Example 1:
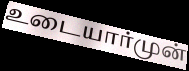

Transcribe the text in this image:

உடையார்முன்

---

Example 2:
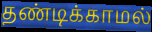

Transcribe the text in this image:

தண்டிக்காமல்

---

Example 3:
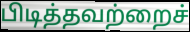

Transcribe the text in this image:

பிடித்தவற்றைச்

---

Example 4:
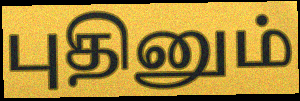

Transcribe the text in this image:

புதினும்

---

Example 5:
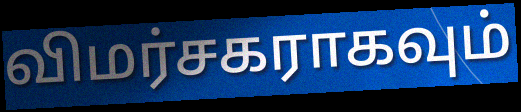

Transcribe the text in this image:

விமர்சகராகவும்